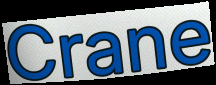
Crane